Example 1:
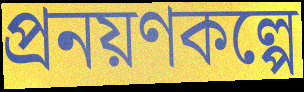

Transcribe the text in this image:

প্রনয়ণকল্পে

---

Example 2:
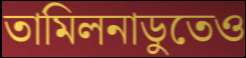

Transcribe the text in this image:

তামিলনাডুতেও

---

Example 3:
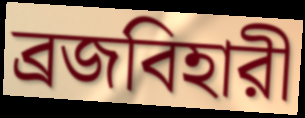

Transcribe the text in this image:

ব্রজবিহারী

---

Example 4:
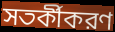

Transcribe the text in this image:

সতর্কীকরণ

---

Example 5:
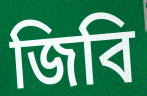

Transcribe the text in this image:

জিবি